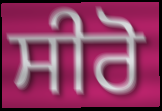
ਸੀਰੋ